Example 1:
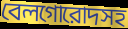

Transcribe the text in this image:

বেলগোরোদসহ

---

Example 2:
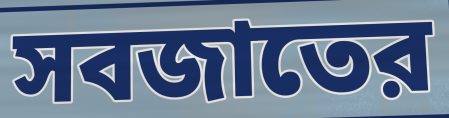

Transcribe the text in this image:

সবজাতের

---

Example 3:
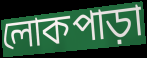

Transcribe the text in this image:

লোকপাড়া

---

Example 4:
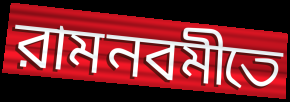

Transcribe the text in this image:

রামনবমীতে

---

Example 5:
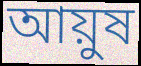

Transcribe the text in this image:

আয়ুষ